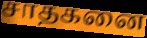
சாதகனை